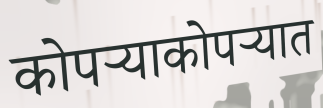
कोपऱ्याकोपऱ्यात